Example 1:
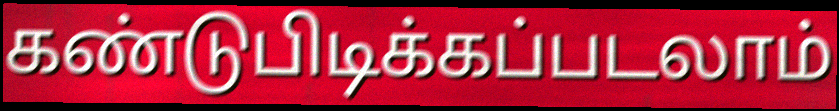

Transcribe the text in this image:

கண்டுபிடிக்கப்படலாம்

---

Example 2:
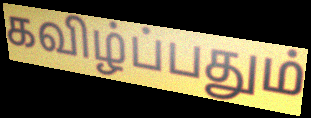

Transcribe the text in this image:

கவிழ்ப்பதும்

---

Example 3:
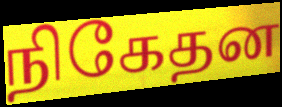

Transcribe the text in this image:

நிகேதன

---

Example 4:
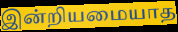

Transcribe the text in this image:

இன்றியமையாத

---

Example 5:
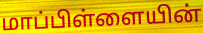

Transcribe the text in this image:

மாப்பிள்ளையின்